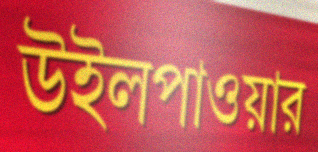
উইলপাওয়ার